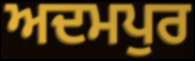
ਅਦਮਪੁਰ